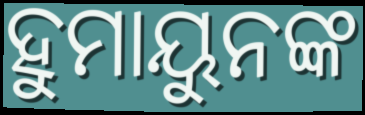
ହୁମାୟୁନଙ୍କ